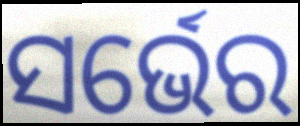
ସର୍ଭେର